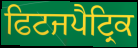
ਫਿਟਜਪੈਟ੍ਰਿਕ